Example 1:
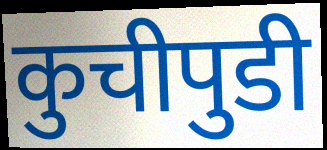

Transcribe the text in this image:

कुचीपुडी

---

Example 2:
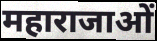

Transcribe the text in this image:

महाराजाओं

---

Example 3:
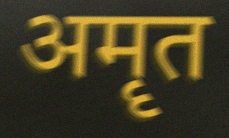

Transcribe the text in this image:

अमॄत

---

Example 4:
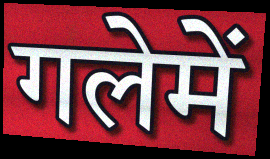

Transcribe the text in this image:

गलेमें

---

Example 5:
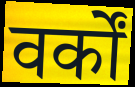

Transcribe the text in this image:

वर्कों